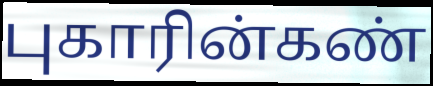
புகாரின்கண்